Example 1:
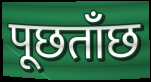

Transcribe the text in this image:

पूछताँछ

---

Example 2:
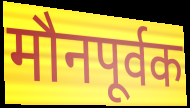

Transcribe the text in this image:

मौनपूर्वक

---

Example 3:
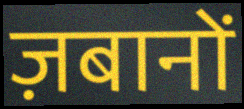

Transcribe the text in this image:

ज़बानों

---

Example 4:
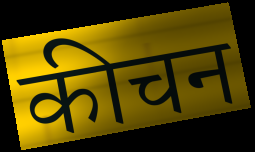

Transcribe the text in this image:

कीचन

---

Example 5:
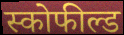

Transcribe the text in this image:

स्कोफील्ड